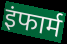
इंफार्म